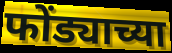
फोंड्याच्या